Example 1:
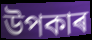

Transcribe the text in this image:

উপকাৰ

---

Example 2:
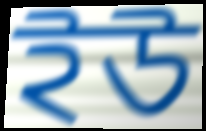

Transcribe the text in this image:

ইউ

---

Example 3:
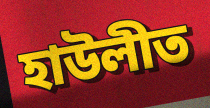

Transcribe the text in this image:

হাউলীত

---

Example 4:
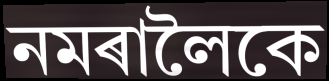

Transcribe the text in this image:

নমৰালৈকে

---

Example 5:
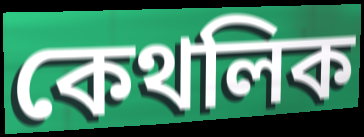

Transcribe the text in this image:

কেথলিক